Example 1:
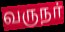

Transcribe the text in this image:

வருநர்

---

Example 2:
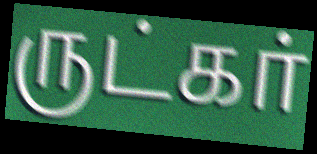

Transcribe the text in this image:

ருட்கர்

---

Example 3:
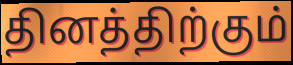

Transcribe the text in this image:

தினத்திற்கும்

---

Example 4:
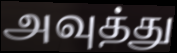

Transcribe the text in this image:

அவுத்து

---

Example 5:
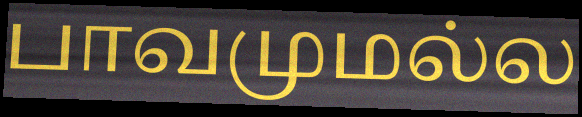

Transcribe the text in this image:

பாவமுமல்ல